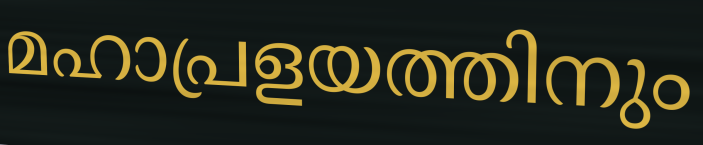
മഹാപ്രളയത്തിനും